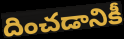
దించడానికీ